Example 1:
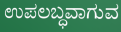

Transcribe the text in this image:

ಉಪಲಬ್ಧವಾಗುವ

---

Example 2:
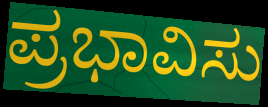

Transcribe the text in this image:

ಪ್ರಭಾವಿಸು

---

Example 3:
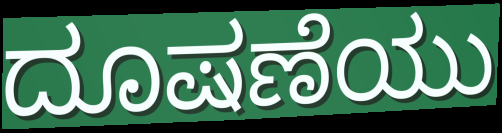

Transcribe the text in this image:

ದೂಷಣೆಯು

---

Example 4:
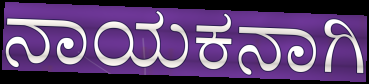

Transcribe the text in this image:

ನಾಯಕನಾಗಿ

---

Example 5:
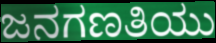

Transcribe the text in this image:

ಜನಗಣತಿಯು